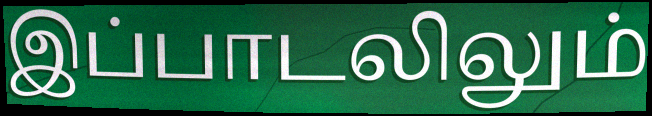
இப்பாடலிலும்